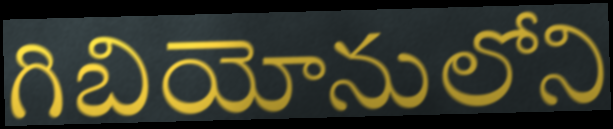
గిబియోనులోని